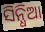
ସିନ୍ଧିଆ